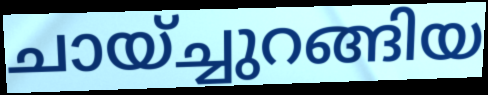
ചായ്ച്ചുറങ്ങിയ